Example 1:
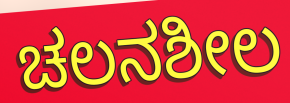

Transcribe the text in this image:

ಚಲನಶೀಲ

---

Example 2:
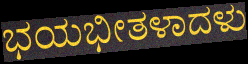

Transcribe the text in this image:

ಭಯಭೀತಳಾದಳು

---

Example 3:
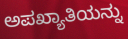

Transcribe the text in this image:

ಅಪಖ್ಯಾತಿಯನ್ನು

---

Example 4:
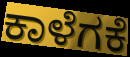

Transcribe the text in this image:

ಕಾಳೆಗಕೆ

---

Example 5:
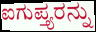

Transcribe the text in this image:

ಐಗುಪ್ತ್ಯರನ್ನು